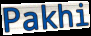
Pakhi